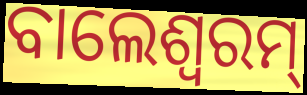
ବାଲେଶ୍ବରମ୍